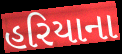
હરિયાના